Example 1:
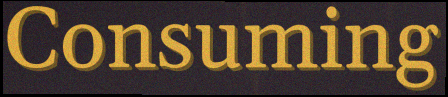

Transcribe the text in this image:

Consuming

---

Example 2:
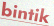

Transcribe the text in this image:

bintik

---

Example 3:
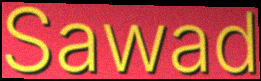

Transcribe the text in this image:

Sawad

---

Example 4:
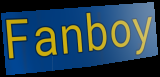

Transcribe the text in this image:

Fanboy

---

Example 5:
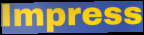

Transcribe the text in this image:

Impress